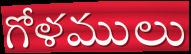
గోళములు